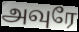
அவுரே